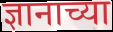
ज्ञानाच्या